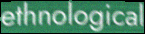
ethnological